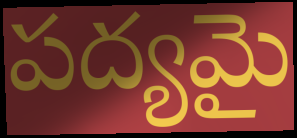
పద్యమై